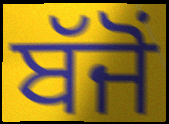
ਬੱਜੋਂ